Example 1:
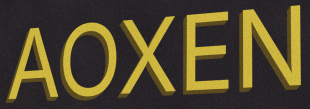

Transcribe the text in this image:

AOXEN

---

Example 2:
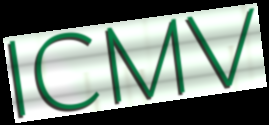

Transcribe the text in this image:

ICMV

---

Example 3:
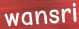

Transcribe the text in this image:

wansri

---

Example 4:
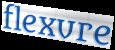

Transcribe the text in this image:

flexure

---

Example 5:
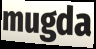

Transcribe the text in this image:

mugda